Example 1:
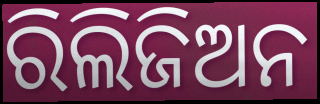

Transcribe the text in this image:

ରିଲିଜିଅନ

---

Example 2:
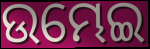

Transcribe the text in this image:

ଉମ୍ଭେଇ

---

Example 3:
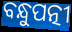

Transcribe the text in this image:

ବନ୍ଧୁପତ୍ନୀ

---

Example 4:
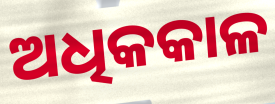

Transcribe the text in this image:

ଅଧିକକାଳ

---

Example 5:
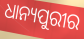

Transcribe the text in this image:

ଧାନ୍ୟପୁରୀର